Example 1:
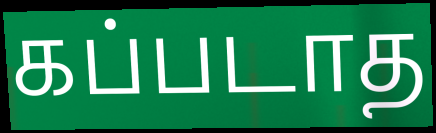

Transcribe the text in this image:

கப்படாத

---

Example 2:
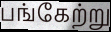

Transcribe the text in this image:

பங்கேற்று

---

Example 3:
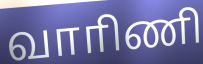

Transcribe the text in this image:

வாரிணி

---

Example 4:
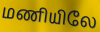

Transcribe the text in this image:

மணியிலே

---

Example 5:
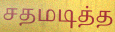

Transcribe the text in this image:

சதமடித்த